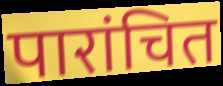
पारांचित